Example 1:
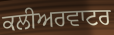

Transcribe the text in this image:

ਕਲੀਅਰਵਾਟਰ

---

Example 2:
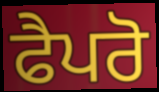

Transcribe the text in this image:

ਫੈਪਰੋ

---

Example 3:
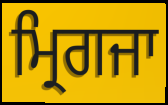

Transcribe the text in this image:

ਮ੍ਰਿਗਜਾ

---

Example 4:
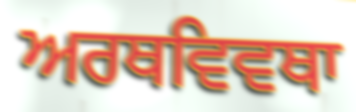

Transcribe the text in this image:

ਅਰਥਵਿਵਥਾ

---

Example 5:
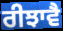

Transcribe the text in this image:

ਰੀਝਾਵੈ